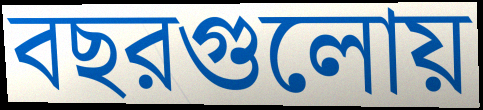
বছরগুলোয়